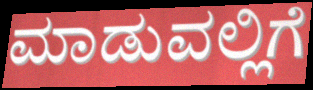
ಮಾಡುವಲ್ಲಿಗೆ